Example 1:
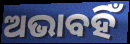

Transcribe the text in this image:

ଅଭାବହିଁ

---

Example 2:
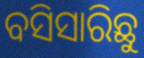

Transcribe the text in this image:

ବସିସାରିଛୁ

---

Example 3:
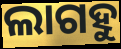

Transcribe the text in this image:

ଲାଗହୁ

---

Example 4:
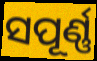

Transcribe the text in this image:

ସପୂର୍ଣ୍ଣ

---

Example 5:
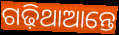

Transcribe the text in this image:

ଗଢ଼ିଥାଆନ୍ତେ